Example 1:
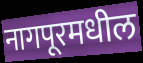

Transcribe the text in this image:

नागपूरमधील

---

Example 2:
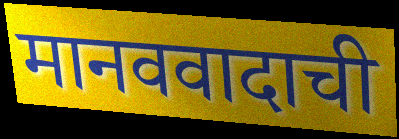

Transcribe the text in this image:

मानववादाची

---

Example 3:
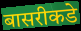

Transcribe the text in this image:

बासरीकडे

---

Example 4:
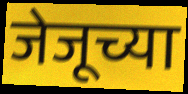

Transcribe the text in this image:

जेजूच्या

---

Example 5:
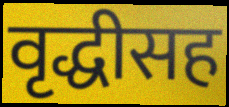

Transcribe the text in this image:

वृद्धीसह